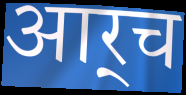
आर्च